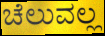
ಚೆಲುವಲ್ಲ